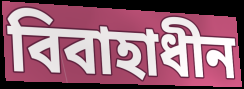
বিবাহাধীন